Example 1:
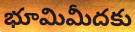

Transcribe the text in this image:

భూమిమీదకు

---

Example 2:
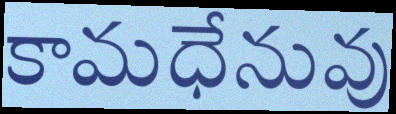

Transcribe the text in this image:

కామధేనువు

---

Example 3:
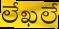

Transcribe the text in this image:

లేఖలే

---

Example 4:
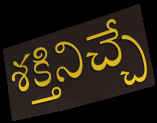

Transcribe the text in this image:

శక్తినిచ్చే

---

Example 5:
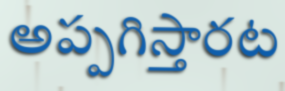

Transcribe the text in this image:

అప్పగిస్తారట